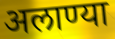
अलाण्या